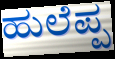
ಹುಲೆಪ್ಪ